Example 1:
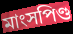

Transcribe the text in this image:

মাংসপিণ্ড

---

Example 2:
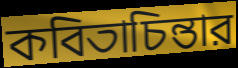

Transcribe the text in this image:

কবিতাচিন্তার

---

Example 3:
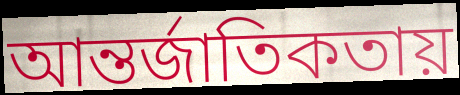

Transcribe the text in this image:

আন্তর্জাতিকতায়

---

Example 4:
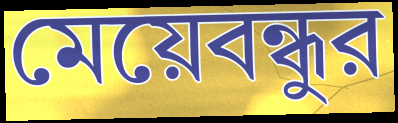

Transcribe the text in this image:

মেয়েবন্ধুর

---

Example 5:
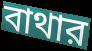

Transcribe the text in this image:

বাথার